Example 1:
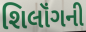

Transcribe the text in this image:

શિલૉંગની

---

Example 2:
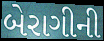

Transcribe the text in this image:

બેરાગીની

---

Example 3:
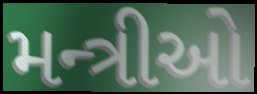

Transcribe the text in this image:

મન્ત્રીઓ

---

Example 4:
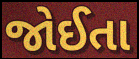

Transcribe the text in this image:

જોઈતા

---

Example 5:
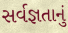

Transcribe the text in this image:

સર્વજ્ઞતાનું